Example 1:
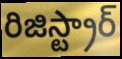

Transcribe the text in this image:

రిజిస్ట్రార్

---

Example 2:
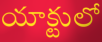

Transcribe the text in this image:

యాక్టులో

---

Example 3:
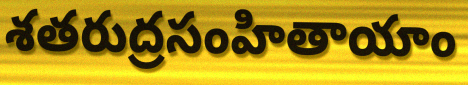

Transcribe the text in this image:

శతరుద్రసంహితాయాం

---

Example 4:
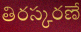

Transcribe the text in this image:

తిరస్కరణే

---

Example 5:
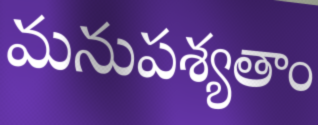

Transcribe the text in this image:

మనుపశ్యతాం